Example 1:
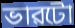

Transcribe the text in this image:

ভাৱটো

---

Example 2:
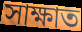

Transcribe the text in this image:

সাক্ষাত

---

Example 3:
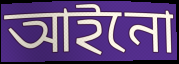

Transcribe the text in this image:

আইনো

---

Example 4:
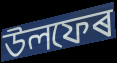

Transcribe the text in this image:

উলফেৰ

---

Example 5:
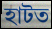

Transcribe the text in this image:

হাটত